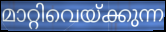
മാറ്റിവെയ്ക്കുന്ന